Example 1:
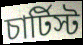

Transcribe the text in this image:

চার্টিস্ট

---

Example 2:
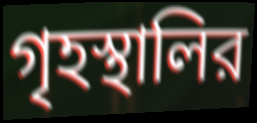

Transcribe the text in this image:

গৃহস্থালির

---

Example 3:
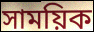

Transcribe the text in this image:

সাময়িক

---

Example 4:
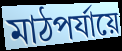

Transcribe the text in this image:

মাঠপর্যায়ে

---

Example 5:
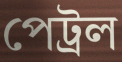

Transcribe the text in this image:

পেট্রল